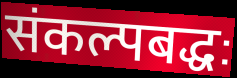
संकल्पबद्धः